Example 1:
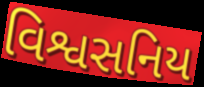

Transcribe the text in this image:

વિશ્વસનિય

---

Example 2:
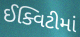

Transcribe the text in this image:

ઈક્વિટીમાં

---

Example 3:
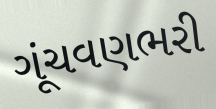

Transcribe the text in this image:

ગૂંચવણભરી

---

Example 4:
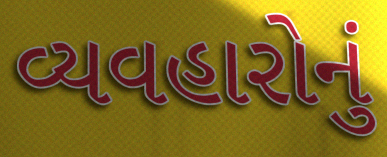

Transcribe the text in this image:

વ્યવહારોનું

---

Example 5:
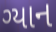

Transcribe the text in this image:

ગ્યાન